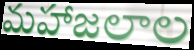
మహాజలాల